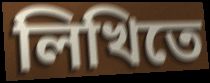
লিখিতে